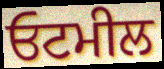
ਓਟਮੀਲ